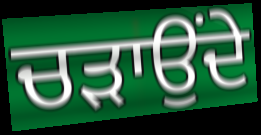
ਚੜਾਉਂਦੇ